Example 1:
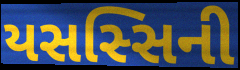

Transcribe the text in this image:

યસસ્સિની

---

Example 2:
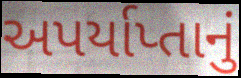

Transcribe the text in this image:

અપર્યાપ્તાનું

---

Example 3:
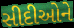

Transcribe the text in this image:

સીદીઓને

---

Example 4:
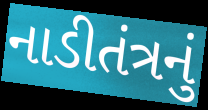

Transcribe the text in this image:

નાડીતંત્રનું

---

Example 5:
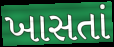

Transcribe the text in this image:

ખાસતાં